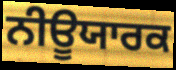
ਨੀਊਯਾਰਕ